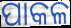
ପାକଳ